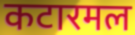
कटारमल